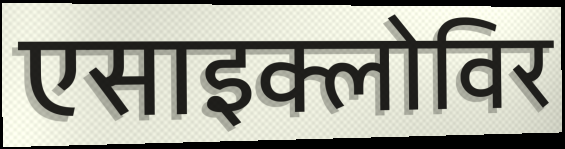
एसाइक्लोविर